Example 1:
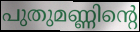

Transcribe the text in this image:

പുതുമണ്ണിന്റെ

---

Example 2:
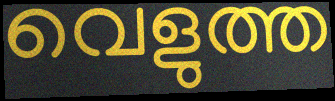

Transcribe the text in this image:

വെളുത്ത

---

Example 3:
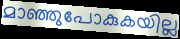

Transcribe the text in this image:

മാഞ്ഞുപോകുകയില്ല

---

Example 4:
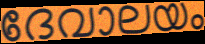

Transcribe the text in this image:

ദേവാലയം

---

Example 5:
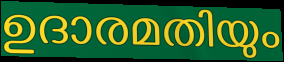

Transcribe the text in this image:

ഉദാരമതിയും